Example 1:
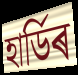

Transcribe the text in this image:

হাৰ্ডিৰ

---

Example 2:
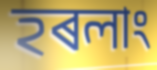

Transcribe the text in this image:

হৰলাং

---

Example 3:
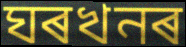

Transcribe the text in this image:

ঘৰখনৰ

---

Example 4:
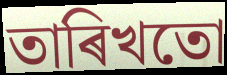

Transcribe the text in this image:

তাৰিখতো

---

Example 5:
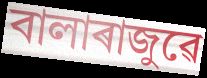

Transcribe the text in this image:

বালাৰাজুৱে